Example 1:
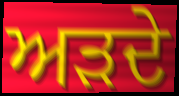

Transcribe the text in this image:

ਅੜਦੇ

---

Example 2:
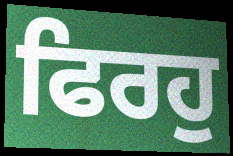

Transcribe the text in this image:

ਫਿਰਹੁ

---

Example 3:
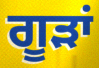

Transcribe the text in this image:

ਗੂੜਾਂ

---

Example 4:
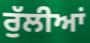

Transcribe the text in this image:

ਰੁੱਲੀਆਂ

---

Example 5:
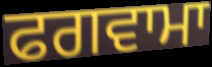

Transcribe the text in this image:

ਫਗਵਾਮਾ